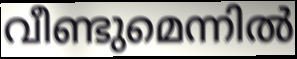
വീണ്ടുമെന്നിൽ